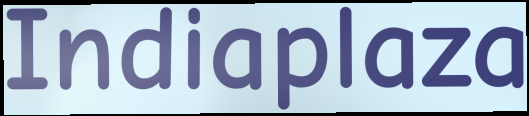
Indiaplaza